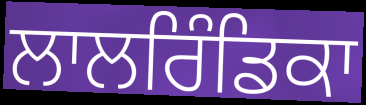
ਲਾਲਰਿੰਡਿਕਾ